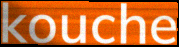
kouche